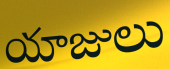
యాజులు